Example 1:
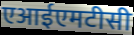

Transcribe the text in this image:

एआईएमटीसी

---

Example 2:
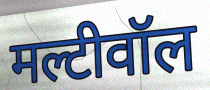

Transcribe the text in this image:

मल्टीवॉल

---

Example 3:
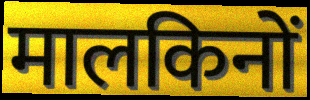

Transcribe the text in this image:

मालकिनों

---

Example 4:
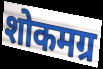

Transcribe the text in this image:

शोकमग्र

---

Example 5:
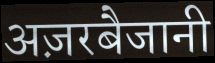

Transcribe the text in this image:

अज़रबैजानी